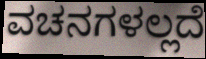
ವಚನಗಳಲ್ಲದೆ